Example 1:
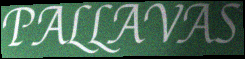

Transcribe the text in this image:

PALLAVAS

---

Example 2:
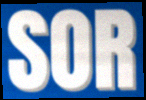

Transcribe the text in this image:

SOR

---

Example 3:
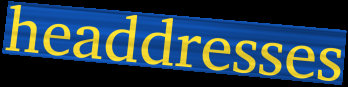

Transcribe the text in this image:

headdresses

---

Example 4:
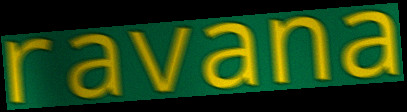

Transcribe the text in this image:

ravana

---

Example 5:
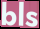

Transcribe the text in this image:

bls